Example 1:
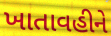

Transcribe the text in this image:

ખાતાવહીને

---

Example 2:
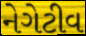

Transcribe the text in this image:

નેગેટીવ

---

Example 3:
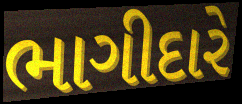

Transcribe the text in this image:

ભાગીદારે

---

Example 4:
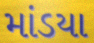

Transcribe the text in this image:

માંડયા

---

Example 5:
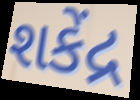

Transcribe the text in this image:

શકેંદ્ર